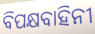
ବିପକ୍ଷବାହିନୀ